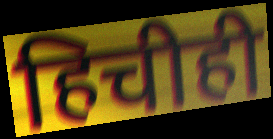
हिचीही